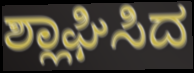
ಶ್ಲಾಘಿಸಿದ